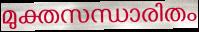
മുക്തസന്ധാരിതം